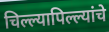
चिल्ल्यापिल्ल्यांचे